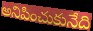
అనిపించుకునేది